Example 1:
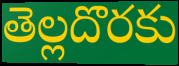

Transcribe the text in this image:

తెల్లదొరకు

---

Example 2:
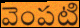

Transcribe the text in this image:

వెంపటి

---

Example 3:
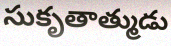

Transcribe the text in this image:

సుకృతాత్ముడు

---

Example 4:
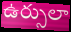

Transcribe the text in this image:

ఉర్సులా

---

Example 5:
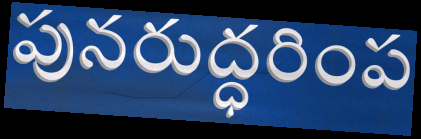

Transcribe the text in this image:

పునరుద్ధరింప